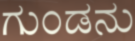
ಗುಂಡನು